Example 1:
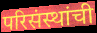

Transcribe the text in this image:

परिसंस्थांची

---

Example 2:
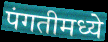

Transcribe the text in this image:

पंगतीमध्ये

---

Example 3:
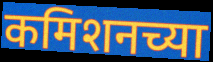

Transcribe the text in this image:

कमिशनच्या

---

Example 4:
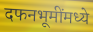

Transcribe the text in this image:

दफनभूमींमध्ये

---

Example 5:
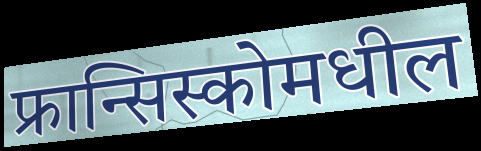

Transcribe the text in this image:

फ्रान्सिस्कोमधील